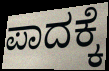
ಪಾದಕ್ಕೆ